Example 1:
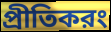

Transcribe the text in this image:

প্রীতিকরং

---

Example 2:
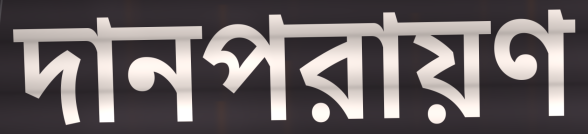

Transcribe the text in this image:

দানপরায়ণ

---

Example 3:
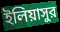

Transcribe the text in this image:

ইলিয়াসুর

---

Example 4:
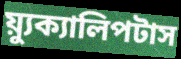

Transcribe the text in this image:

য়্যুক্যালিপটাস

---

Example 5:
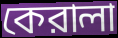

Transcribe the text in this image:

কেরালা